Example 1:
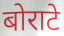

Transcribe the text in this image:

बोराटे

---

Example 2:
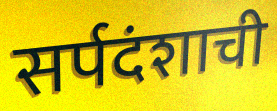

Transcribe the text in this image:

सर्पदंशाची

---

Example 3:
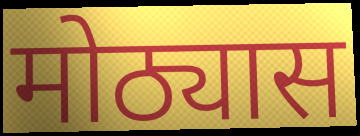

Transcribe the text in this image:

मोठ्यास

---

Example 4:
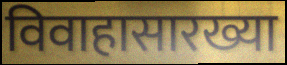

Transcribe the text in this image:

विवाहासारख्या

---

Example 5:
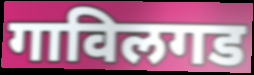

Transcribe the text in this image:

गाविलगड